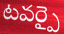
టవర్పై